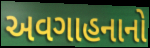
અવગાહનાનો